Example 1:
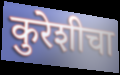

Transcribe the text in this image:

कुरेशीचा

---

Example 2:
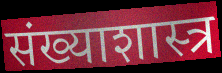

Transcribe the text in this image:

संख्याशास्त्र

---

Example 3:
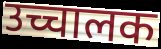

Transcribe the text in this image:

उच्चालक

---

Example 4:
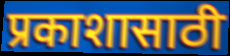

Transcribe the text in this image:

प्रकाशासाठी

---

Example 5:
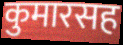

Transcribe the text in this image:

कुमारसह